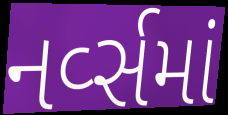
નર્વ્સમાં